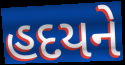
હદયને